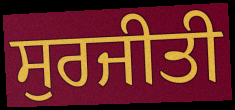
ਸੁਰਜੀਤੀ